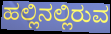
ಹಲ್ಲಿನಲ್ಲಿರುವ